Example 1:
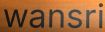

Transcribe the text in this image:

wansri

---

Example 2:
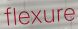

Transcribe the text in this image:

flexure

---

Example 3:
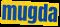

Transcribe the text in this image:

mugda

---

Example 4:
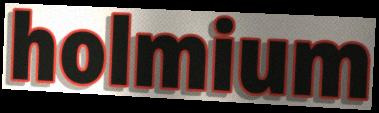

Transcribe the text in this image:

holmium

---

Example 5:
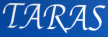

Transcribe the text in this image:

TARAS